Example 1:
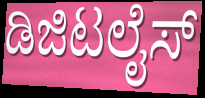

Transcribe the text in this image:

ಡಿಜಿಟಲೈಸ್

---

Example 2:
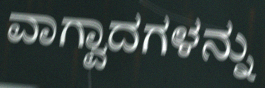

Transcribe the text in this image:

ವಾಗ್ವಾದಗಳನ್ನು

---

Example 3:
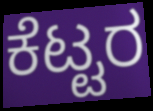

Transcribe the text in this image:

ಕೆಟ್ಟರ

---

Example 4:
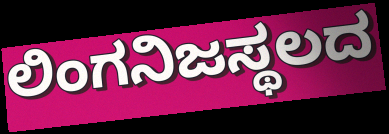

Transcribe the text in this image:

ಲಿಂಗನಿಜಸ್ಥಲದ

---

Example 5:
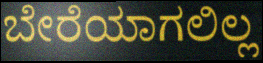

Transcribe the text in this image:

ಬೇರೆಯಾಗಲಿಲ್ಲ